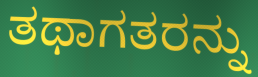
ತಥಾಗತರನ್ನು